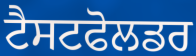
ਟੈਸਟਫੋਲਡਰ